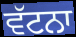
ਵੱਟਨਾ